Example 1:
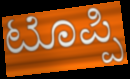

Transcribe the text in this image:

ಟೊಪ್ಪಿ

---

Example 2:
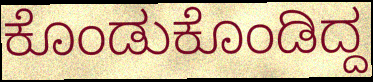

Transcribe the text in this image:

ಕೊಂಡುಕೊಂಡಿದ್ದ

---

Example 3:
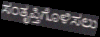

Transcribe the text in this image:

ಸಂತೃಪ್ತಿಗೊಳಿಸಲು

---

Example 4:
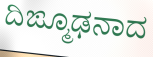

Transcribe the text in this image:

ದಿಙ್ಮೂಢನಾದ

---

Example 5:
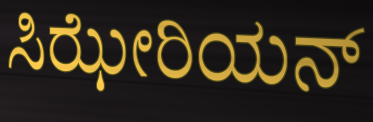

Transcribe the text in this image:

ಸಿಝೇರಿಯನ್